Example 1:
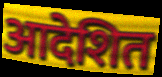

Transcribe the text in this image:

आदेशित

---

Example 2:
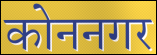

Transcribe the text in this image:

कोननगर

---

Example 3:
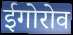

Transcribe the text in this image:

ईगोरोव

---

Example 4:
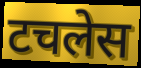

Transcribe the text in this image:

टचलेस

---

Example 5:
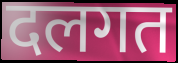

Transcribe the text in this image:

दलगत